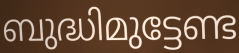
ബുദ്ധിമുട്ടേണ്ട